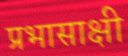
प्रभासाक्षी